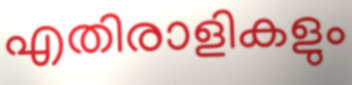
എതിരാളികളും